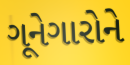
ગૂનેગારોને